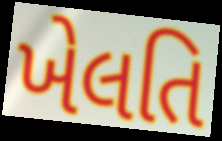
ખેલતિ